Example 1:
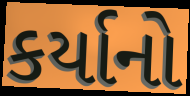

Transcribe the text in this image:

કર્યાનો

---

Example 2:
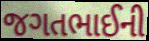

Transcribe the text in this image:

જગતભાઈની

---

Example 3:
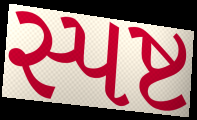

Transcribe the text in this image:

સ્પષ્ટ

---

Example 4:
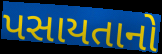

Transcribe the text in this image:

પસાયતાનો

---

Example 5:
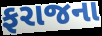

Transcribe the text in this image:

ફરાજના